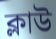
ক্লাউ